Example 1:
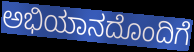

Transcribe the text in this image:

ಅಭಿಯಾನದೊಂದಿಗೆ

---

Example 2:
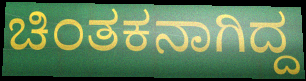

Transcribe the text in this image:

ಚಿಂತಕನಾಗಿದ್ದ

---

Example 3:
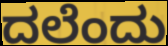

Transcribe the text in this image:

ದಲೆಂದು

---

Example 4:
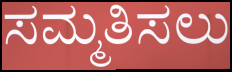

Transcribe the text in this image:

ಸಮ್ಮತಿಸಲು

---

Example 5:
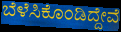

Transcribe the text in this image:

ಬೆಳೆಸಿಕೊಂಡಿದ್ದೇವೆ